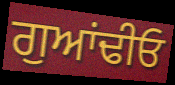
ਗੁਆਂਢੀਓ